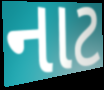
નાટ